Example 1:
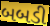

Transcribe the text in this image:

બબડી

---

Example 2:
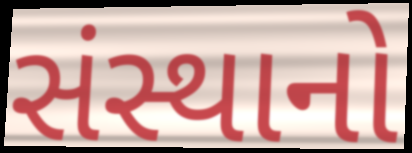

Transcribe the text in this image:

સંસ્થાનો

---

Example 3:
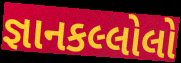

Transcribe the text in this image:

જ્ઞાનકલ્લોલો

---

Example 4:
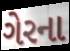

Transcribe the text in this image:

ગેરના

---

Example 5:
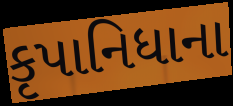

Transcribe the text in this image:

કૃપાનિધાના